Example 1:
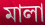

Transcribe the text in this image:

মালা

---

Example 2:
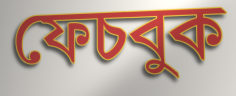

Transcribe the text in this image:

ফেচবুক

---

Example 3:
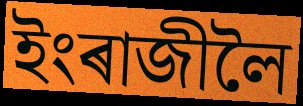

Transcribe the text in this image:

ইংৰাজীলৈ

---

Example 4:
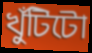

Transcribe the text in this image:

খুঁটিটো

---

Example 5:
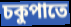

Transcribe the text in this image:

চকুপাতে